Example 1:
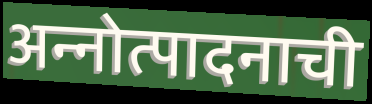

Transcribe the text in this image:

अन्नोत्पादनाची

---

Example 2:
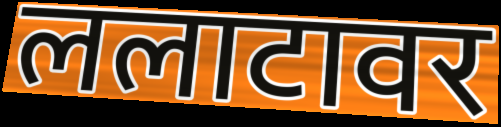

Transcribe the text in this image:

ललाटावर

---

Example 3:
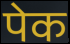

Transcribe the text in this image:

पेक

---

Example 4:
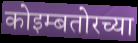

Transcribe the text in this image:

कोइम्बतोरच्या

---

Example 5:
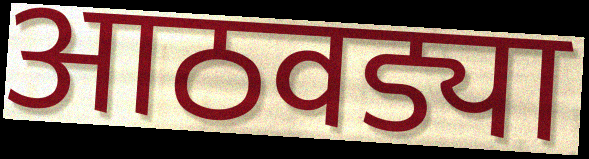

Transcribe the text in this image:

आठवड्या